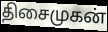
திசைமுகன்